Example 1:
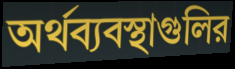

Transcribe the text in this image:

অর্থব্যবস্থাগুলির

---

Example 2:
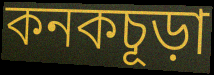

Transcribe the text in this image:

কনকচূড়া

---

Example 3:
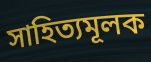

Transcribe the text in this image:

সাহিত্যমূলক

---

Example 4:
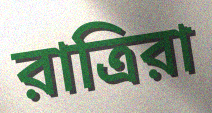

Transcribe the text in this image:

রাত্রিরা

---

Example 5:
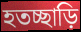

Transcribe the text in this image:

হতচ্ছাড়ি